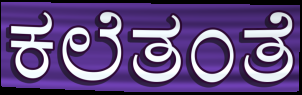
ಕಲೆತಂತೆ